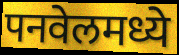
पनवेलमध्ये